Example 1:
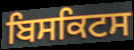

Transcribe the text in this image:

ਬਿਸਕਿਟਸ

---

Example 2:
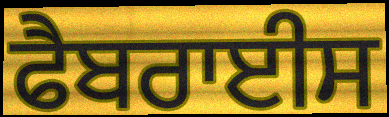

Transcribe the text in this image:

ਫੈਬਰਾਈਸ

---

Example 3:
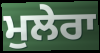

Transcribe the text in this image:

ਮੁਲੇਰਾ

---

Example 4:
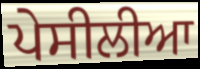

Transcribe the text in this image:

ਪੇਸੀਲੀਆ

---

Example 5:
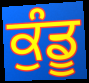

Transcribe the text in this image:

ਕੁੰਡੂ